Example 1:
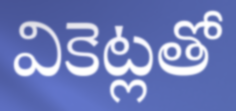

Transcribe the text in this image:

వికెట్లతో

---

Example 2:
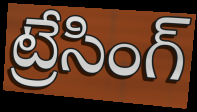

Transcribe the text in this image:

ట్రేసింగ్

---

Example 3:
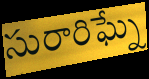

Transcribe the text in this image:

సురారిఘ్నే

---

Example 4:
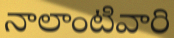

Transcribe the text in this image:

నాలాంటివారి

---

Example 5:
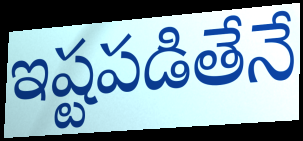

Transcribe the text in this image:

ఇష్టపడితేనే